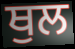
ਥੁਲ